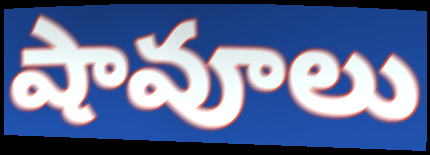
షావూలు